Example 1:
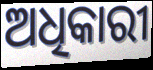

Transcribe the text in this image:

ଅଧିକାରୀ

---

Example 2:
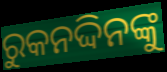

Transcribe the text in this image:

ରୁକନଦ୍ଦିନଙ୍କୁ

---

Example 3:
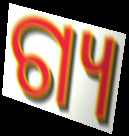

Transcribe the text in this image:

ଗ୍ୟ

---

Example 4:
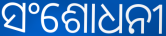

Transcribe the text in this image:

ସଂଶୋଧନୀ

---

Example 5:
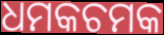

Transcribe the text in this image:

ଧମକଚମକ